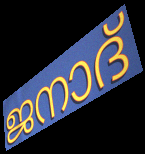
ജനാദ്